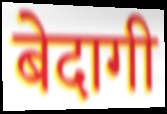
बेदागी